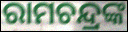
ରାମଚନ୍ଦ୍ରଙ୍କ